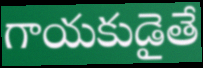
గాయకుడైతే